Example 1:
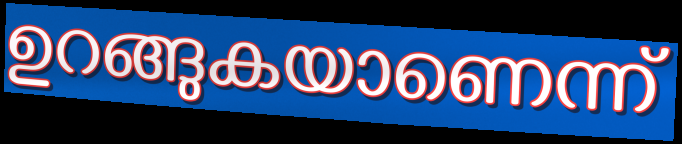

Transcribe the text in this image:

ഉറങ്ങുകയാണെന്ന്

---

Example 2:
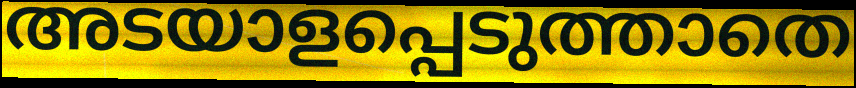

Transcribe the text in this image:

അടയാളപ്പെടുത്താതെ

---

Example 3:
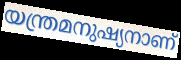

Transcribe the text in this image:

യന്ത്രമനുഷ്യനാണ്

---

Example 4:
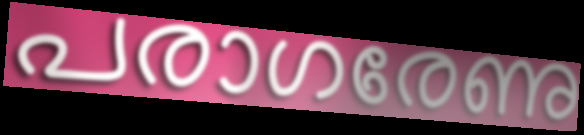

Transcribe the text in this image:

പരാഗരേണു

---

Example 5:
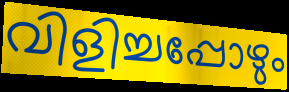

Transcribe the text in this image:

വിളിച്ചപ്പോഴും